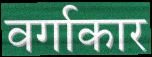
वर्गाकार